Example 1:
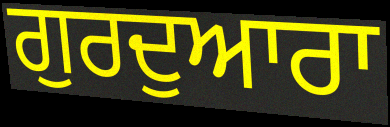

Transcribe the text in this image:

ਗੁਰਦੁਆਰਾ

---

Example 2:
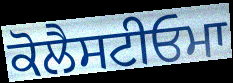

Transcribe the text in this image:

ਕੋਲੈਸਟੀਓਮਾ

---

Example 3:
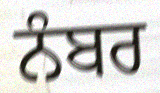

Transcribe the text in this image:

ਨੰਬਰ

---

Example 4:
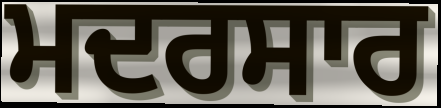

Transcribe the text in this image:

ਮਦਰਸਾਰ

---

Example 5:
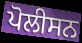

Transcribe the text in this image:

ਪੋਲੀਸਨ